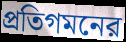
প্রতিগমনের